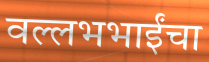
वल्लभभाईंचा